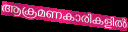
ആക്രമണകാരികളിൽ